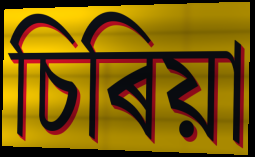
চিৰিয়া